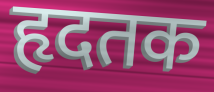
हृदतक